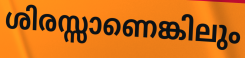
ശിരസ്സാണെങ്കിലും